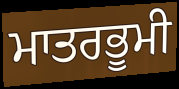
ਮਾਤਰਭੂਮੀ